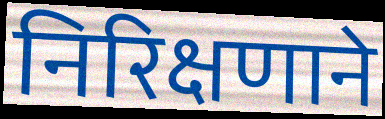
निरिक्षणाने